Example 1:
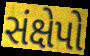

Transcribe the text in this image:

સંક્ષેપો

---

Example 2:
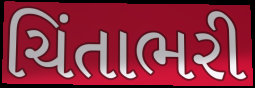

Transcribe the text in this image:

ચિંતાભરી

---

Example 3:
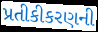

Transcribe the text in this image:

પ્રતીકીકરણની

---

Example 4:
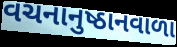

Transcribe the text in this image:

વચનાનુષ્ઠાનવાળા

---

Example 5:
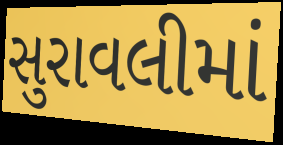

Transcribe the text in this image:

સુરાવલીમાં